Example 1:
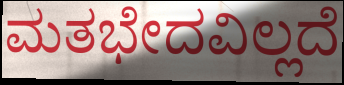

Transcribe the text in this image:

ಮತಭೇದವಿಲ್ಲದೆ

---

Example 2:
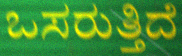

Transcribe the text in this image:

ಒಸರುತ್ತಿದೆ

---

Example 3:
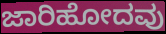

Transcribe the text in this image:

ಜಾರಿಹೋದವು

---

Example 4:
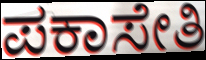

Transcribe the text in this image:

ಪಕಾಸೇತಿ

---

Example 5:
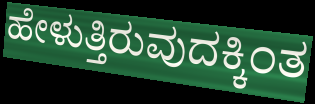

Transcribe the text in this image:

ಹೇಳುತ್ತಿರುವುದಕ್ಕಿಂತ